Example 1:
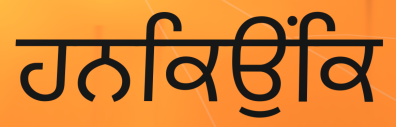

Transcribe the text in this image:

ਹਨਕਿਉਂਕਿ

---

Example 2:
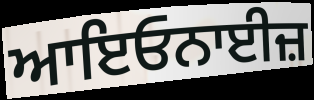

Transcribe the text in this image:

ਆਇਓਨਾਈਜ਼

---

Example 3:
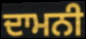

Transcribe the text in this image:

ਦਾਮਨੀ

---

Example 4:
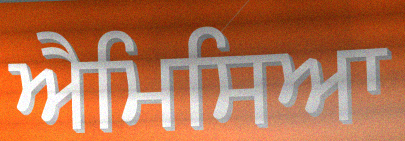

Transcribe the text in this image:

ਐਮਿਸਿਆ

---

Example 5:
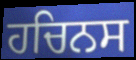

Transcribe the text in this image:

ਹਚਿਨਸ